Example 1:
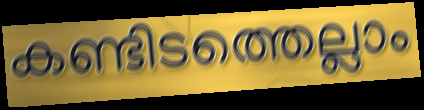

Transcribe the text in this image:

കണ്ടിടത്തെല്ലാം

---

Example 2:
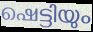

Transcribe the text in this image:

ഷെട്ടിയും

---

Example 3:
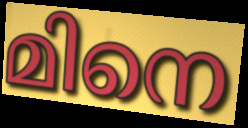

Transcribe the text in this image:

മിനെ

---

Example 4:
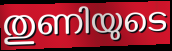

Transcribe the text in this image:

തുണിയുടെ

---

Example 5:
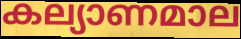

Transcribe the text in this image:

കല്യാണമാല